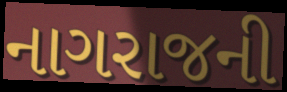
નાગરાજની